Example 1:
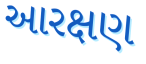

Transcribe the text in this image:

આરક્ષણ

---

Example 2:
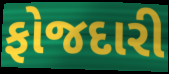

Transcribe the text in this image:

ફોજદારી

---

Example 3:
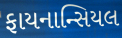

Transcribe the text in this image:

ફાયનાન્સિયલ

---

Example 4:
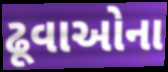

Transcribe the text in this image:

ઢૂવાઓના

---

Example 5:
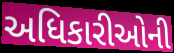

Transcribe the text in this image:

અધિકારીઓની